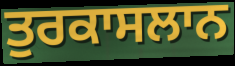
ਤੁਰਕਾਸਲਾਨ